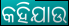
କହିଯାଉ